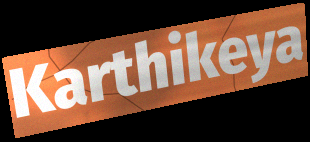
Karthikeya